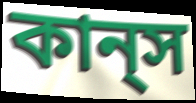
কান্‌স